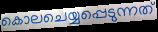
കൊലചെയ്യപ്പെടുന്നത്